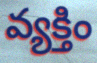
వ్యక్తిం